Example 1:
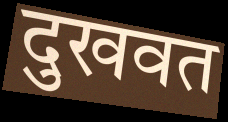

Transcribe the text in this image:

दुखवत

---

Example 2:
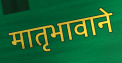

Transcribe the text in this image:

मातृभावाने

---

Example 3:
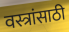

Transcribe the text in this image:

वस्त्रांसाठी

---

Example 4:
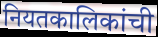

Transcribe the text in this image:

नियतकालिकांची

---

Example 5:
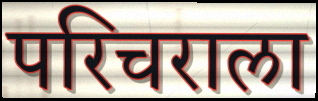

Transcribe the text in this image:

परिचराला